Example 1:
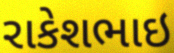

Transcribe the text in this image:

રાકેશભાઇ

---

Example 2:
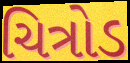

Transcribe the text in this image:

ચિત્રોડ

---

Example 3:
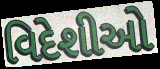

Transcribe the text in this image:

વિદેશીઓ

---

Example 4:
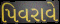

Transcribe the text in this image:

પિવરાવે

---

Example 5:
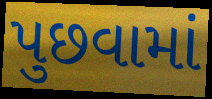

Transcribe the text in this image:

પુછવામાં